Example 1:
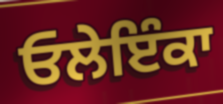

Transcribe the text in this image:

ਓਲੇਇੰਕਾ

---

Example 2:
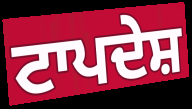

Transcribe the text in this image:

ਟਾਪਦੇਸ਼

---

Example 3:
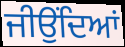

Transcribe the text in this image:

ਜੀਉਂਦਿਆਂ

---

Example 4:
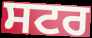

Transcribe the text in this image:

ਸਟਰ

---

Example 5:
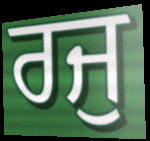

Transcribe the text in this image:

ਰਜੁ